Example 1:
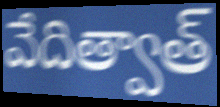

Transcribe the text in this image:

వేదిత్వాత్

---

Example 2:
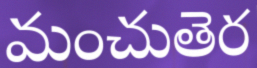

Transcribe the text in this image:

మంచుతెర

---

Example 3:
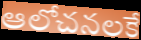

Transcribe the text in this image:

ఆలోచనలకే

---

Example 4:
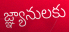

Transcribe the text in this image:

జ్ఞ్యానులకు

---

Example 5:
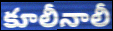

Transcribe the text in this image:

కూలీనాలీ